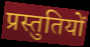
प्रस्तुतियों